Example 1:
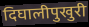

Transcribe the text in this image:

दिघालीपुखुरी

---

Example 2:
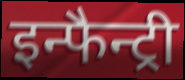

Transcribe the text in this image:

इन्फैन्ट्री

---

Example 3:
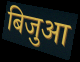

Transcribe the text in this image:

बिजुआ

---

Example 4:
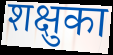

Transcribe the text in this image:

शक्षुका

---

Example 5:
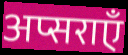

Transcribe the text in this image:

अप्सराएँ